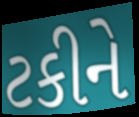
ટકીને